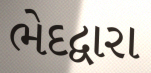
ભેદદ્વારા